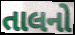
તાલનો